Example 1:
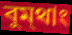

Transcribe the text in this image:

বুম্থাং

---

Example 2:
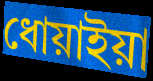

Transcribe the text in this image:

ধোয়াইয়া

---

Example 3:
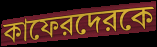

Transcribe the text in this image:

কাফেরদেরকে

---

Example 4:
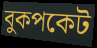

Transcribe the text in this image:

বুকপকেট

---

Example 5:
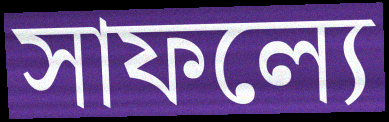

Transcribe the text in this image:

সাফল্যে